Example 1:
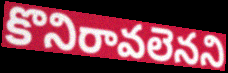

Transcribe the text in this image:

కొనిరావలెనని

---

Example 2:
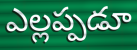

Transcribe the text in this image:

ఎల్లప్పడూ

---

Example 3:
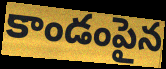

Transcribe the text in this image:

కాండంపైన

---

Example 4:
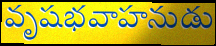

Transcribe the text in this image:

వృషభవాహనుడు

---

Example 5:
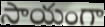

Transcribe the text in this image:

సాయంగా